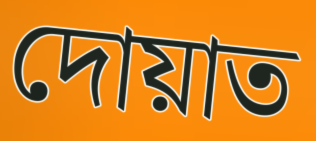
দোয়াত